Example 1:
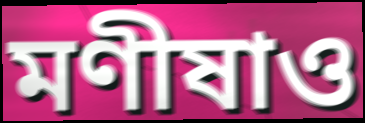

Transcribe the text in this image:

মণীষাও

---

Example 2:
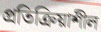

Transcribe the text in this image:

প্ৰতিক্ৰিয়াশীল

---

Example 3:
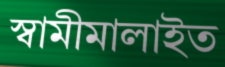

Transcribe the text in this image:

স্বামীমালাইত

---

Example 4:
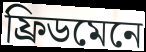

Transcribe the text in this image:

ফ্ৰিডমেনে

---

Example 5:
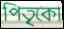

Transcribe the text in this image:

পিতৃকো